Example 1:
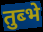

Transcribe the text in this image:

तुब्भे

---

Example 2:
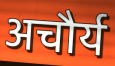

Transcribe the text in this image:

अचौर्य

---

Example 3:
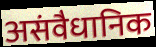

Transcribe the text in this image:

असंवैधानिक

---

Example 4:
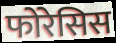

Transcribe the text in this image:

फोरेसिस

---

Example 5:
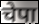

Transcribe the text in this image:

चेपा